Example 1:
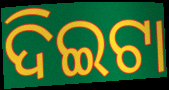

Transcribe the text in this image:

ଦିଇଟା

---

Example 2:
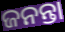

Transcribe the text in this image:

ଜନନ୍ତା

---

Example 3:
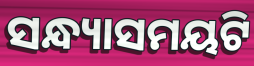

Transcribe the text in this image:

ସନ୍ଧ୍ୟାସମୟଟି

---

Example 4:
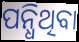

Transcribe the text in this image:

ପନ୍ଧିଥିବା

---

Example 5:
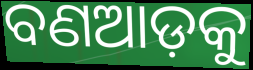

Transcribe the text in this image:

ବଣଆଡ଼କୁ